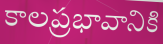
కాలప్రభావానికి